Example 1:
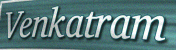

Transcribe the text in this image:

Venkatram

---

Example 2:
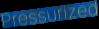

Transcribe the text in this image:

Pressurized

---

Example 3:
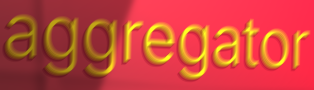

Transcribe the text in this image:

aggregator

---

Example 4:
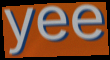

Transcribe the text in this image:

yee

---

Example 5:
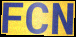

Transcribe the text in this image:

FCN